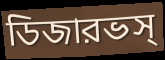
ডিজারভস্